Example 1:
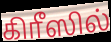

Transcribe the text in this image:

கிரீஸில்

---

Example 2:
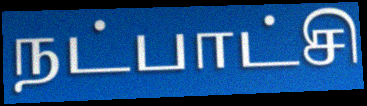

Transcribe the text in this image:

நட்பாட்சி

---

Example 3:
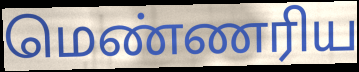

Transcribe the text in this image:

மெண்ணரிய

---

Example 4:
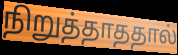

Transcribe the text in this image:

நிறுத்தாததால்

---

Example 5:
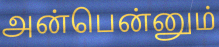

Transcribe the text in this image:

அன்பென்னும்